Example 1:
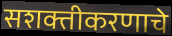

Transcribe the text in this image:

सशक्तीकरणाचे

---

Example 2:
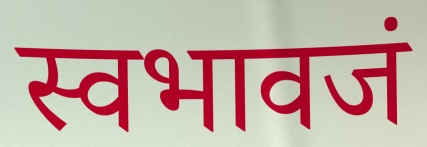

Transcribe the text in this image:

स्वभावजं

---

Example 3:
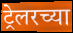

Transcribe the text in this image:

ट्रेलरच्या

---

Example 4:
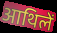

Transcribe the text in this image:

आथिलें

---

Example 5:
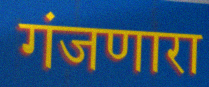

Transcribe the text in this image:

गंजणारा